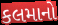
કલમાનો